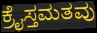
ಕ್ರೈಸ್ತಮತವು